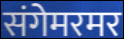
संगेमरमर